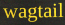
wagtail